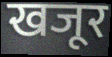
खजूर